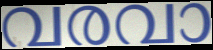
വരവാ